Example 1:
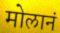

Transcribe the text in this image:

मोलानं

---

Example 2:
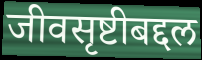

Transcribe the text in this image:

जीवसृष्टीबद्दल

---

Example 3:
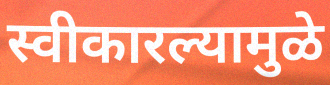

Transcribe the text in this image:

स्वीकारल्यामुळे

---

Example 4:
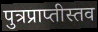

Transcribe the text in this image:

पुत्रप्राप्तीस्तव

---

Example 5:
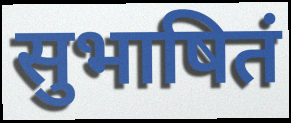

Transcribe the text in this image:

सुभाषितं